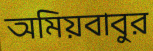
অমিয়বাবুর